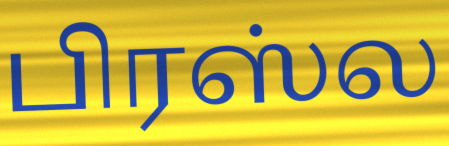
பிரஸ்ல